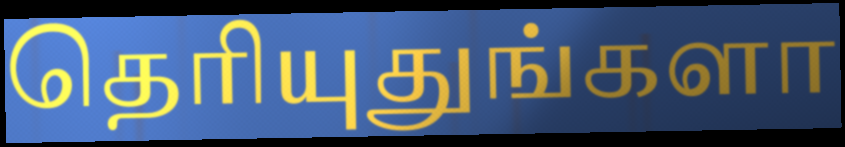
தெரியுதுங்களா